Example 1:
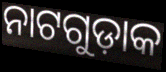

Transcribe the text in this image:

ନାଟଗୁଡ଼ାକ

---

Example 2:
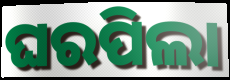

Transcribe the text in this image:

ଘରପିଲା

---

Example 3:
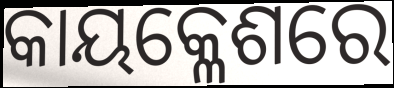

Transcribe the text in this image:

କାୟକ୍ଳେଶରେ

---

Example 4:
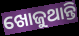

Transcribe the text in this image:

ଖୋଜୁଥାନ୍ତି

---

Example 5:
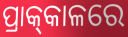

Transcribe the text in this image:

ପ୍ରାକ୍‍କାଳରେ